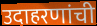
उदाहरणांची